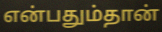
என்பதும்தான்